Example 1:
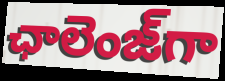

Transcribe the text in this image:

ఛాలెంజ్‌గా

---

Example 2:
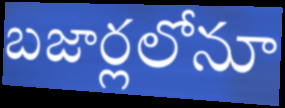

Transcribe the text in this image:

బజార్లలోనూ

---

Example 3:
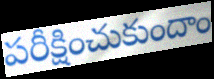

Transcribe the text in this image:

పరీక్షించుకుందాం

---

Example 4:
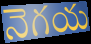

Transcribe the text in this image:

నెగయ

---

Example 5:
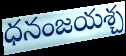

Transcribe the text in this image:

ధనంజయశ్చ